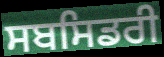
ਸਬਸਿਡਰੀ